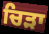
ਚਿੜਾ